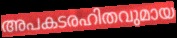
അപകടരഹിതവുമായ